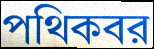
পথিকবর